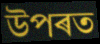
উপৰত